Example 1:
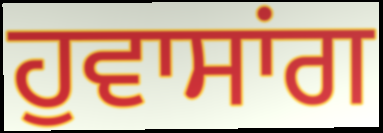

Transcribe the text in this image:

ਹੁਵਾਸਾਂਗ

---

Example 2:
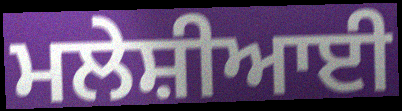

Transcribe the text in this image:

ਮਲੇਸ਼ੀਆਈ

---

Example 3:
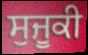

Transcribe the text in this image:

ਸੁਜੂਕੀ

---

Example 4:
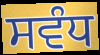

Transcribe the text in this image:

ਸਵੰਧ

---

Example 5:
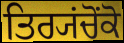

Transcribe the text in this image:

ਤਿਰ੍ਯਂਚੋਂਕੋ